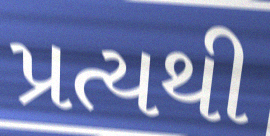
પ્રત્યથી